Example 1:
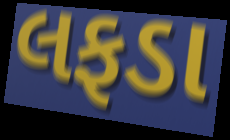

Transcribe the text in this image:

લફડા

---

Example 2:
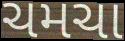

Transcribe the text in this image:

ચમચા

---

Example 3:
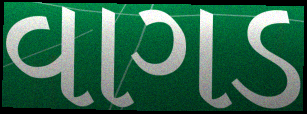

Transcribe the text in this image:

વાગડ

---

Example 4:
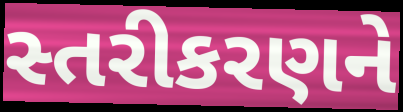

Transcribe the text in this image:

સ્તરીકરણને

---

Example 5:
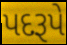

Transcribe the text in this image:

પદરૂપે